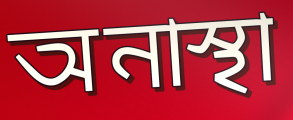
অনাস্থা